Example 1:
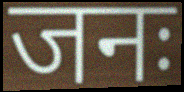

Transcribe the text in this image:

जनः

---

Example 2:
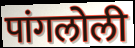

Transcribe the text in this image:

पांगलोली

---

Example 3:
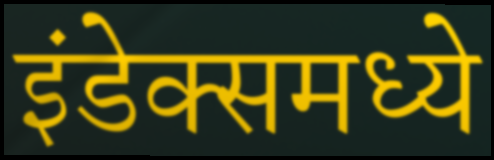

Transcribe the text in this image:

इंडेक्समध्ये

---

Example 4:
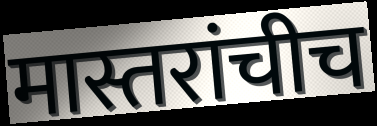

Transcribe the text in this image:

मास्तरांचीच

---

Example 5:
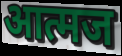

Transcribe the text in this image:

आत्मज